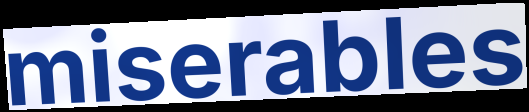
miserables